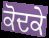
ਕੋਦਕੇ